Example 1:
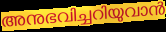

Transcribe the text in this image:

അനുഭവിച്ചറിയുവാൻ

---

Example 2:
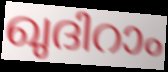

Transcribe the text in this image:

ഖുദിറാം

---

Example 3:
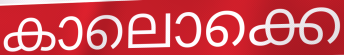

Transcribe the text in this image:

കാലൊക്കെ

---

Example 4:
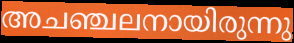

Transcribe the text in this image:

അചഞ്ചലനായിരുന്നു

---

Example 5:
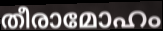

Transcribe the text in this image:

തീരാമോഹം